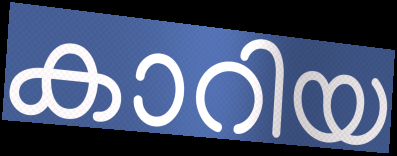
കാറിയ